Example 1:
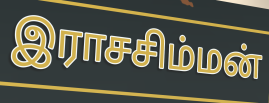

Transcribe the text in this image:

இராசசிம்மன்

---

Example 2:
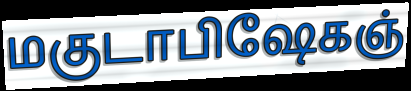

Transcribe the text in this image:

மகுடாபிஷேகஞ்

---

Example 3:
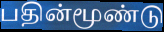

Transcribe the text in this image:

பதின்மூண்டு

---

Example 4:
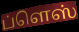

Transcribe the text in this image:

ப்ளெஸ்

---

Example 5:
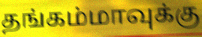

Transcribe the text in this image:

தங்கம்மாவுக்கு